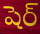
షెర్